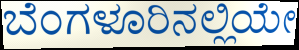
ಬೆಂಗಳೂರಿನಲ್ಲಿಯೇ